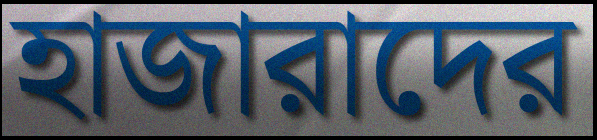
হাজারাদের